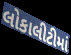
લોકાલીટીમાં